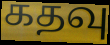
கதவு